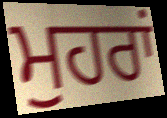
ਮੁਹਰਾਂ